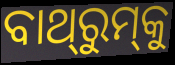
ବାଥ୍‌ରୁମ୍‌କୁ